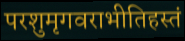
परशुमृगवराभीतिहस्तं